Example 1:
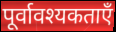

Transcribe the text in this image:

पूर्वावश्यकताएँ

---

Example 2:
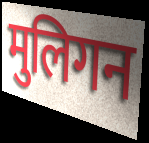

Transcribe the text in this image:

मुलिगन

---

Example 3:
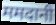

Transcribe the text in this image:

ममदानी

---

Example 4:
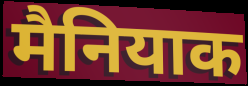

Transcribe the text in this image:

मैनियाक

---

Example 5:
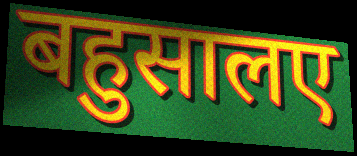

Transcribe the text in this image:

बहुसालए